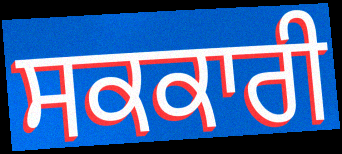
ਸਕਕਾਰੀ